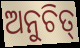
ଅନୁଚିତ୍